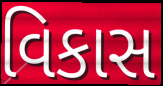
વિકાસ